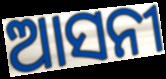
ଆସନୀ